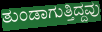
ತುಂಡಾಗುತ್ತಿದ್ದವು